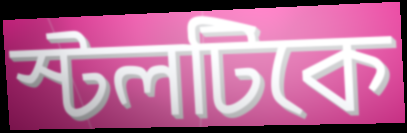
স্টলটিকে